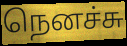
நெனச்சு